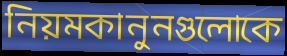
নিয়মকানুনগুলোকে